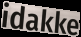
idakke